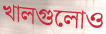
খালগুলোও